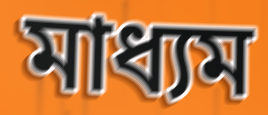
মাধ্যম